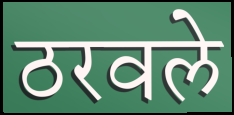
ठरवले